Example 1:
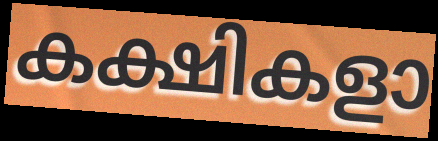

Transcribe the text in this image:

കക്ഷികളാ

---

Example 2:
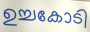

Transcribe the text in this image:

ഉച്ചകോടി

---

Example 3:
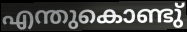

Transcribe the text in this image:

എന്തുകൊണ്ടു്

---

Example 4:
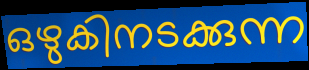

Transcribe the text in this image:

ഒഴുകിനടക്കുന്ന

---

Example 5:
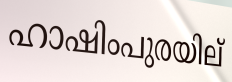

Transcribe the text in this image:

ഹാഷിംപുരയില്